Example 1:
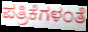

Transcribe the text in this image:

ಪತ್ರಿಕೆಗಳಂತೆ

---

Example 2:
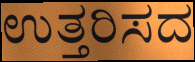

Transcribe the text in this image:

ಉತ್ತರಿಸದ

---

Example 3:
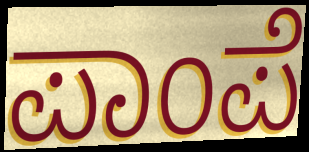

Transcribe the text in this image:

ಪಾಂಪೆ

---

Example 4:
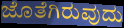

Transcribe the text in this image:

ಜೊತೆಗಿರುವುದು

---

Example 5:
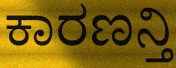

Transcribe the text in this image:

ಕಾರಣನ್ತಿ